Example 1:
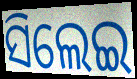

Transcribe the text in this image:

ସିଲେଇ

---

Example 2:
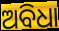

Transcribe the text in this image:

ଅବିଧା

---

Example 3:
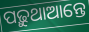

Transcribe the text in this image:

ପଢ଼ୁଥାଆନ୍ତେ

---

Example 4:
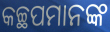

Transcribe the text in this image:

କଚ୍ଛପମାନଙ୍କ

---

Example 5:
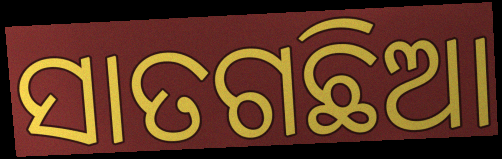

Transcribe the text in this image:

ସାତଗଛିଆ